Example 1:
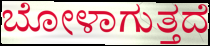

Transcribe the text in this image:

ಬೋಳಾಗುತ್ತದೆ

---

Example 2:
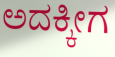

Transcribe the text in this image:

ಅದಕ್ಕೀಗ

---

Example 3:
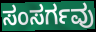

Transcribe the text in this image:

ಸಂಸರ್ಗವು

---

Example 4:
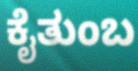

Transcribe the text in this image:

ಕೈತುಂಬ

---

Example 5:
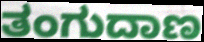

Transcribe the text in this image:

ತಂಗುದಾಣ